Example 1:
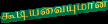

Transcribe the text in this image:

கூடியவையுமான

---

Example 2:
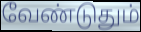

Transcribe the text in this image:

வேண்டுதும்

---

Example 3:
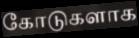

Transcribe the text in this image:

கோடுகளாக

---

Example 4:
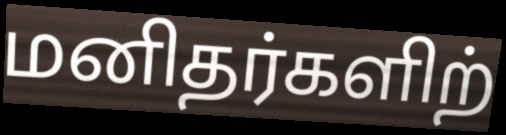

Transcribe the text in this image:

மனிதர்களிற்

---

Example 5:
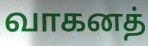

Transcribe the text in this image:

வாகனத்